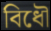
বিধৌ